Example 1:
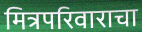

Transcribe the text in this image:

मित्रपरिवाराचा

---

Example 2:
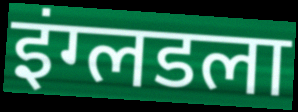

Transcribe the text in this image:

इंग्लडला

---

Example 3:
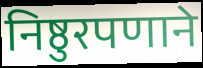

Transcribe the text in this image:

निष्ठुरपणाने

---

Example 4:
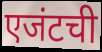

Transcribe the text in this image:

एजंटची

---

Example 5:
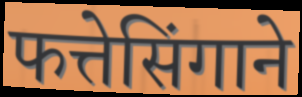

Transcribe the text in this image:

फत्तेसिंगाने